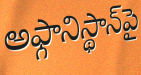
అఫ్గానిస్థాన్‌పై